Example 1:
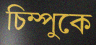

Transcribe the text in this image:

চিম্পুকে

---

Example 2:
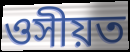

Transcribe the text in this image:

ওসীয়ত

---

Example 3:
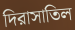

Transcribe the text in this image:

দিরাসাতিল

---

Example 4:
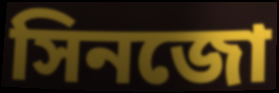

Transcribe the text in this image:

সিনজো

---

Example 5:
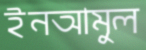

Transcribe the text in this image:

ইনআমুল